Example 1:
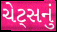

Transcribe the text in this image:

ચેટ્સનું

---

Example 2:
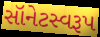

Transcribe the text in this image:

સૉનેટસ્વરૂપ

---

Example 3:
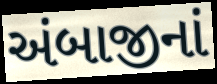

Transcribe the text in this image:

અંબાજીનાં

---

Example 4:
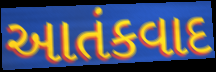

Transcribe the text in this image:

આતંકવાદ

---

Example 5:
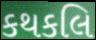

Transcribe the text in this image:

કથકલિ